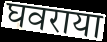
घवराया